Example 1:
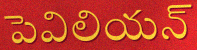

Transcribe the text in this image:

పెవిలియన్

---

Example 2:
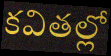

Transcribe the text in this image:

కవితల్లో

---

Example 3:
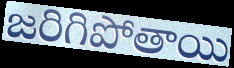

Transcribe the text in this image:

జరిగిపోతాయి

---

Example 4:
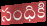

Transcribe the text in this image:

సంధికి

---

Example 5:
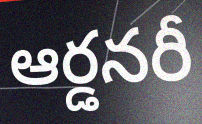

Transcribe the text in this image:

ఆర్డనరీ